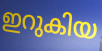
ഇറുകിയ